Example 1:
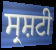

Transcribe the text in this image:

ਸ੍ਰਸ਼ਟੀ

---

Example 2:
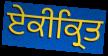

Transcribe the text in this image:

ਏਕੀਕ੍ਰਿਤ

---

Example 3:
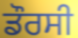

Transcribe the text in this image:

ਡੌਰਸੀ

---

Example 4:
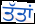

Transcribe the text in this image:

ਤੱਤਾਂ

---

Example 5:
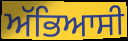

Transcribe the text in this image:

ਅੱਭਿਆਸੀ